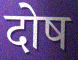
दोष